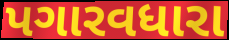
પગારવધારા